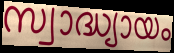
സ്വാദ്ധ്യായം